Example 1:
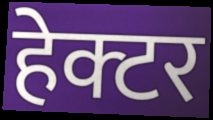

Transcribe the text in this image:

हेक्‍टर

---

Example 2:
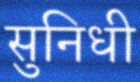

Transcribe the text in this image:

सुनिधी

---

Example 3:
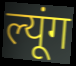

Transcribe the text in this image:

ल्यूंग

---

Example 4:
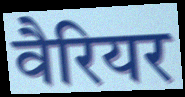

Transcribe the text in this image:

वैरियर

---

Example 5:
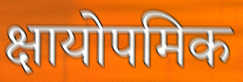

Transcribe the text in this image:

क्षायोपमिक